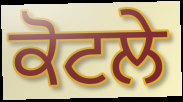
ਕੋਟਲੇ